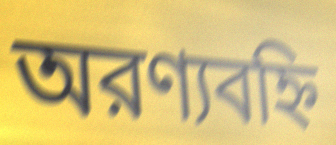
অরণ্যবহ্নি